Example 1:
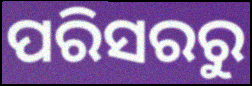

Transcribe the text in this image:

ପରିସରରୁ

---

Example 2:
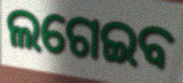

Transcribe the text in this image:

ଲଗେଇବ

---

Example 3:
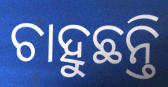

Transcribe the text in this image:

ଚାହୁଛନ୍ତି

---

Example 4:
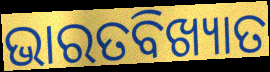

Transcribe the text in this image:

ଭାରତବିଖ୍ୟାତ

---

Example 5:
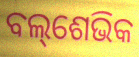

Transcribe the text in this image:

ବଲ୍‌ଶେଭିକ